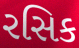
રસિક